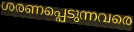
ശരണപ്പെടുന്നവരെ